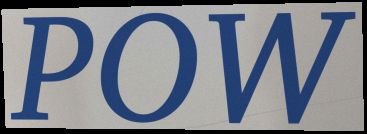
POW